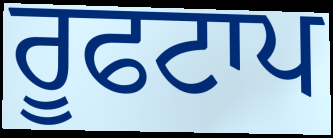
ਰੂਫਟਾਪ